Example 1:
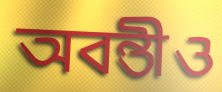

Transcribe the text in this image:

অবন্তীও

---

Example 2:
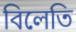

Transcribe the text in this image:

বিলেতি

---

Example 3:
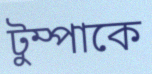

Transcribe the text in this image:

টুম্পাকে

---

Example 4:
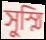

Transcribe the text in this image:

সুস্মি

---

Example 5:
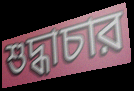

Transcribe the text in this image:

শুদ্ধাচার